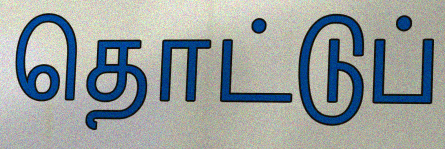
தொட்டுப்